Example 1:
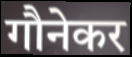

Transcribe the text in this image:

गौनेकर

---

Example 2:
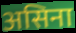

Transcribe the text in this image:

असिना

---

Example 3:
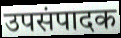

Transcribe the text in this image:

उपसंपादक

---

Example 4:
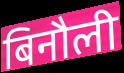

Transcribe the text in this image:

बिनौली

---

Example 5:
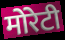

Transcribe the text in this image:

मोरेटी